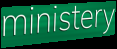
ministery